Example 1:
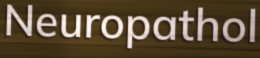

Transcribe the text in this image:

Neuropathol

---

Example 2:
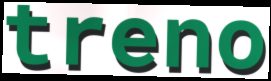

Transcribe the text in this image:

treno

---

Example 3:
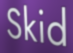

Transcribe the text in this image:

Skid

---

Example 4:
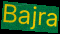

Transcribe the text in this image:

Bajra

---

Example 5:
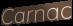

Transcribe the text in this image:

Carnac